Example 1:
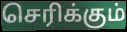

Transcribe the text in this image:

செரிக்கும்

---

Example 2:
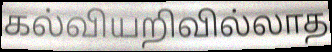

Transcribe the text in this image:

கல்வியறிவில்லாத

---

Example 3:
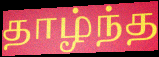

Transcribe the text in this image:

தாழ்ந்த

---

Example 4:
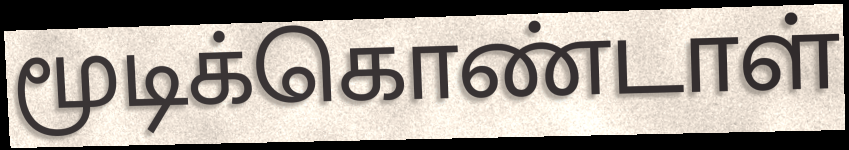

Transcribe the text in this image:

மூடிக்கொண்டாள்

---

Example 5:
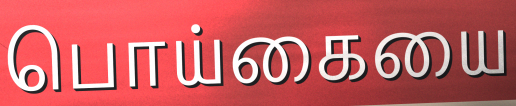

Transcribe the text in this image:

பொய்கையை